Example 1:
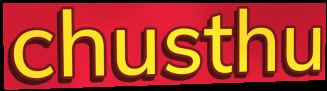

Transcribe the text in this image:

chusthu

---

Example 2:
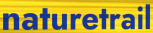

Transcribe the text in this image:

naturetrail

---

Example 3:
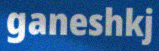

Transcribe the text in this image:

ganeshkj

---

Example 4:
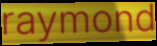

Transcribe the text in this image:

raymond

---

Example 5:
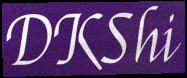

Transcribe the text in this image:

DKShi